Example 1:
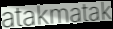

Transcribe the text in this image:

atakmatak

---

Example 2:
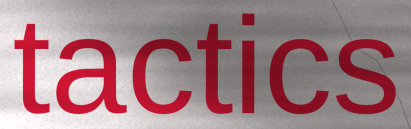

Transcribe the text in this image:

tactics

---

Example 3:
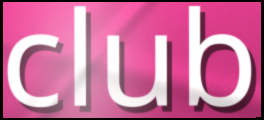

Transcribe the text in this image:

club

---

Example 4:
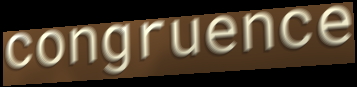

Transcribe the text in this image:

congruence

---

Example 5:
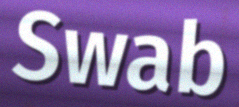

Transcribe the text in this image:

Swab